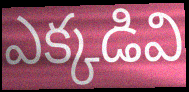
ఎక్కడివి